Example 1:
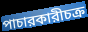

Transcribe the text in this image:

পাচারকারীচক্র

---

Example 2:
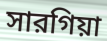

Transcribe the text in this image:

সারগিয়া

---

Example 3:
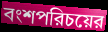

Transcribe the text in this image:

বংশপরিচয়ের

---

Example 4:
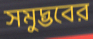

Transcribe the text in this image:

সমুদ্ভবের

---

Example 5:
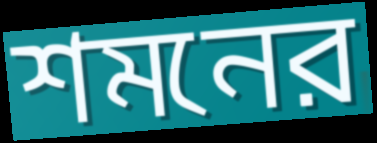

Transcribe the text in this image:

শমনের